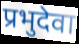
प्रभुदेवा